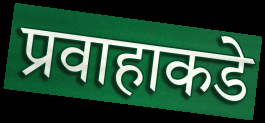
प्रवाहाकडे